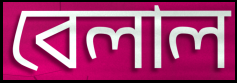
বেলাল